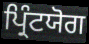
ਪ੍ਰਿੰਟਯੋਗ